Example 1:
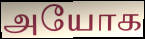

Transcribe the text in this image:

அயோக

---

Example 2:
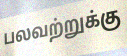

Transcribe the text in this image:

பலவற்றுக்கு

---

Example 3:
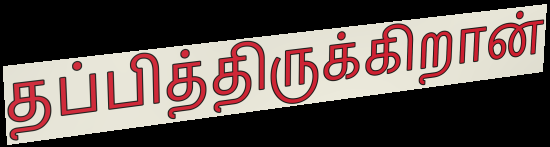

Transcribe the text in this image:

தப்பித்திருக்கிறான்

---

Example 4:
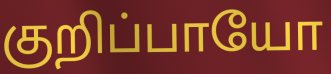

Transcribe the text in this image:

குறிப்பாயோ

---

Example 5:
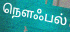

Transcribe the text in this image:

நௌஃபல்